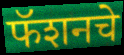
फॅशनचे